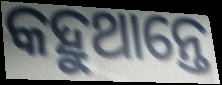
କହୁଥାନ୍ତେ